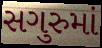
સગુરુમાં